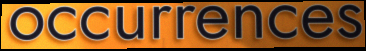
occurrences